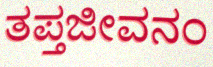
ತಪ್ತಜೀವನಂ